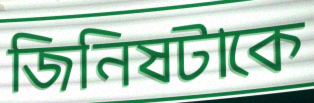
জিনিষটাকে